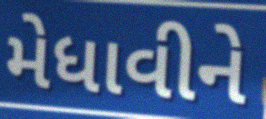
મેધાવીને